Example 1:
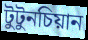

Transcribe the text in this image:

টুটুনচিয়ান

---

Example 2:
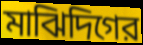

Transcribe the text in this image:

মাঝিদিগের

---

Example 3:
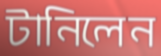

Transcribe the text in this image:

টানিলেন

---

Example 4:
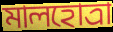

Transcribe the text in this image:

মালহোত্রা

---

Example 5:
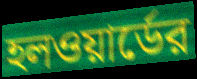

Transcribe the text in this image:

হলওয়ার্ডের